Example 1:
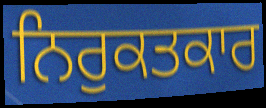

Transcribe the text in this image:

ਨਿਰੁਕਤਕਾਰ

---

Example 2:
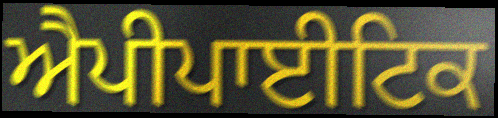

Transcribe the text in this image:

ਐਪੀਪਾਈਟਿਕ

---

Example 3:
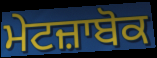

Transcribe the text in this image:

ਮੇਟਜ਼ਾਬੋਕ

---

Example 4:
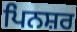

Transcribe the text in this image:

ਪਿਨਸ਼ਰ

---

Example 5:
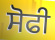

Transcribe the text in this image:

ਸੋਫੀ